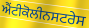
ਐਂਟੀਕੋਲੀਨਸਟਰੇਸ